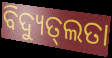
ବିଦ୍ୟୁତ୍‌ଲତା